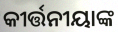
କୀର୍ତ୍ତନୀୟାଙ୍କ